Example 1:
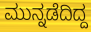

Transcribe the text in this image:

ಮುನ್ನಡೆದಿದ್ದ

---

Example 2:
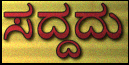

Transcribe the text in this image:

ಸದ್ದದು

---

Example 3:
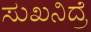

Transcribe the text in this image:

ಸುಖನಿದ್ರೆ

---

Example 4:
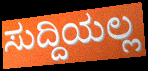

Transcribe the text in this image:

ಸುದ್ದಿಯಲ್ಲ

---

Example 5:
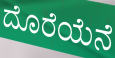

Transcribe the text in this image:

ದೊರೆಯೆನೆ